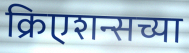
क्रिएशन्सच्या